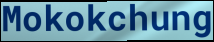
Mokokchung